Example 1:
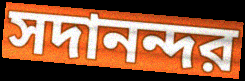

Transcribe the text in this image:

সদানন্দর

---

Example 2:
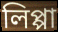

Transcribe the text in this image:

লিপ্পা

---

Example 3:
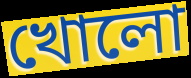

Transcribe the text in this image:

খোলো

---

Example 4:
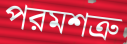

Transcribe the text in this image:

পরমশত্রু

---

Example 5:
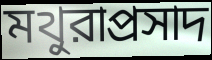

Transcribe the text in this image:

মথুরাপ্রসাদ